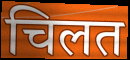
चिलत